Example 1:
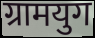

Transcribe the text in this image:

ग्रामयुग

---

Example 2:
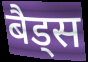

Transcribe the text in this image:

बैड्स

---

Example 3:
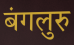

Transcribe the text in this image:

बंगलुरु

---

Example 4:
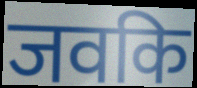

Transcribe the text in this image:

जवकि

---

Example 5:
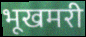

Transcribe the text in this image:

भूखमरी